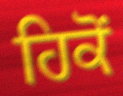
ਹਿਕੋਂ